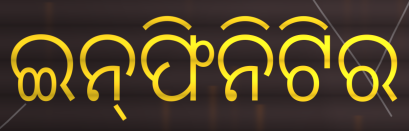
ଇନ୍‌ଫିନିଟିର